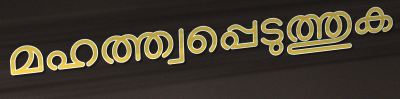
മഹത്ത്വപ്പെടുത്തുക